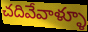
చదివేవాళ్ళూ